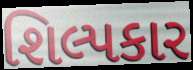
શિલ્પકાર